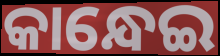
କାନ୍ଧେଇ